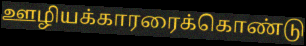
ஊழியக்காரரைக்கொண்டு